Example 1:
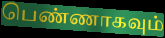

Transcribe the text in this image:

பெண்ணாகவும்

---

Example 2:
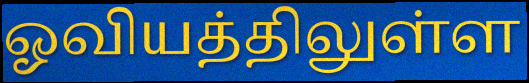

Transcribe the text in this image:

ஓவியத்திலுள்ள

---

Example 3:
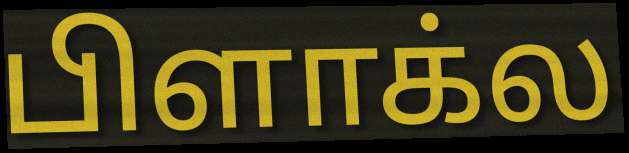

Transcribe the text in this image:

பிளாக்ல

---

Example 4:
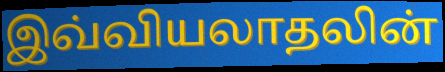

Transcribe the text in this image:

இவ்வியலாதலின்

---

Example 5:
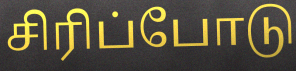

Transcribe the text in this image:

சிரிப்போடு